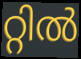
റ്റിൽ